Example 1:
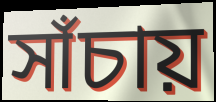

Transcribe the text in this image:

সাঁচায়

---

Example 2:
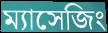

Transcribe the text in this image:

ম্যাসেজিং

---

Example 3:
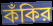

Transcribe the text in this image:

কঁকির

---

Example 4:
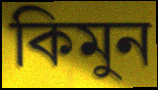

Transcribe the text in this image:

কিমুন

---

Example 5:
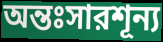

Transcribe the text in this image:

অন্তঃসারশূন্য